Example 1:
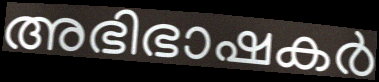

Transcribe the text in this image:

അഭിഭാഷകർ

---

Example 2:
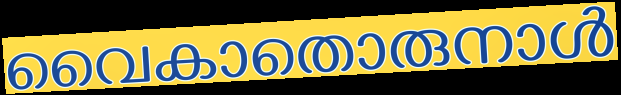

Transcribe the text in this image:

വൈകാതൊരുനാൾ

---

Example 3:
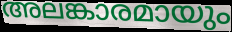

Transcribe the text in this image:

അലങ്കാരമായും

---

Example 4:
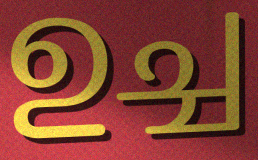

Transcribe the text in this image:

ഉച്ച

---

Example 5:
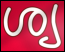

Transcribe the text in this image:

ശ്യ